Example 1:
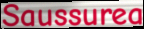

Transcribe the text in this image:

Saussurea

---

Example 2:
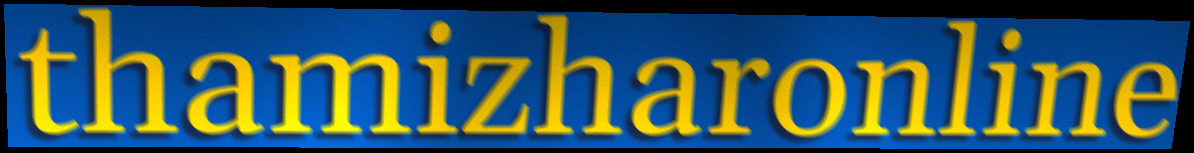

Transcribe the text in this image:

thamizharonline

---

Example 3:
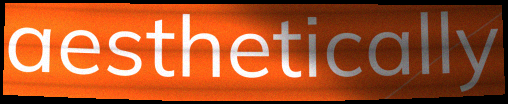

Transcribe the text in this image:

aesthetically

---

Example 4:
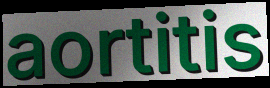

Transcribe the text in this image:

aortitis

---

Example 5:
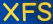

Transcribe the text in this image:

XFS